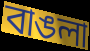
বাঙলা